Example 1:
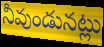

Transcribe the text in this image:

నీవుండునట్లు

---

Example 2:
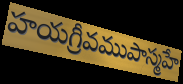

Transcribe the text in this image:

హయగ్రీవముపాస్మహే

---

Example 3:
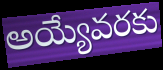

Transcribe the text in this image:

అయ్యేవరకు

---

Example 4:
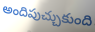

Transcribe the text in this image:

అందిపుచ్చుకుంది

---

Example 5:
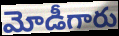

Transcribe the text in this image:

మోడీగారు